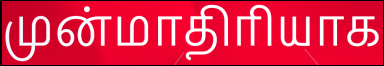
முன்மாதிரியாக